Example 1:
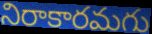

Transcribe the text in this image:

నిరాకారమగు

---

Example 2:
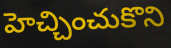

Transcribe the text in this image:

హెచ్చించుకొని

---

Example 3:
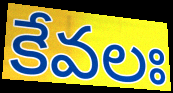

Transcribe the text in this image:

కేవలః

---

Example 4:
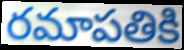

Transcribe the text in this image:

రమాపతికి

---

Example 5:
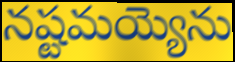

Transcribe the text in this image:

నష్టమయ్యెను